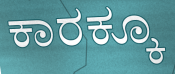
ಕಾರಕ್ಕೂ